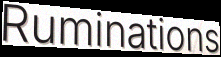
Ruminations